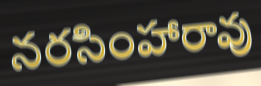
నరసింహారావు